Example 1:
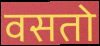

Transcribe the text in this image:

वसतो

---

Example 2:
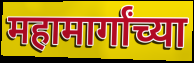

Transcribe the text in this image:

महामार्गांच्या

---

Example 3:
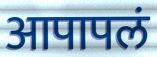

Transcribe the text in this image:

आपापलं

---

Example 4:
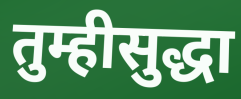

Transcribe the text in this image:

तुम्हीसुद्धा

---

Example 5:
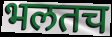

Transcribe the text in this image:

भलतच